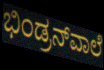
ಭಿಂಡ್ರನ್‌ವಾಲೆ